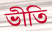
ভীতি